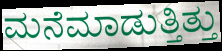
ಮನೆಮಾಡುತ್ತಿತ್ತು